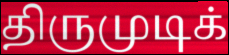
திருமுடிக்